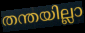
തന്തയില്ലാ